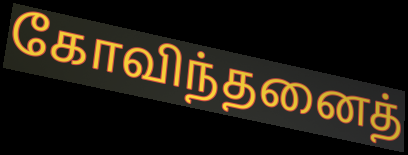
கோவிந்தனைத்